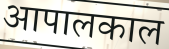
आपालकाल